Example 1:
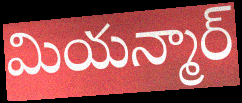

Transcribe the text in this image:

మియన్మార్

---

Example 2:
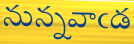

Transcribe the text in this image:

నున్నవాఁడ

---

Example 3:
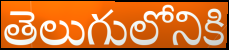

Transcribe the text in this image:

తెలుగులోనికి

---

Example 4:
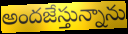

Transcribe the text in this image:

అందజేస్తున్నాను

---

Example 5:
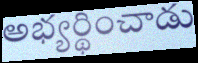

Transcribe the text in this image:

అభ్యర్థించాడు